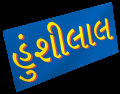
હુંશીલાલ